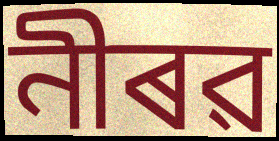
নীৰৱ